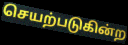
செயற்படுகின்ற